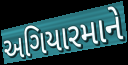
અગિયારમાને